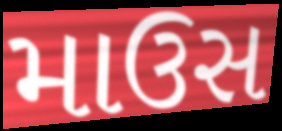
માઉસ